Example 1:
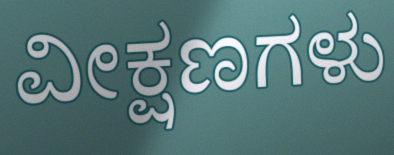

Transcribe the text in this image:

ವೀಕ್ಷಣಗಳು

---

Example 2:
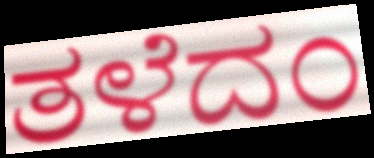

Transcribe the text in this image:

ತಳೆದಂ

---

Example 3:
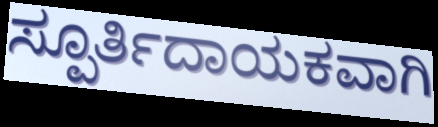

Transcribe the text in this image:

ಸ್ಪೂರ್ತಿದಾಯಕವಾಗಿ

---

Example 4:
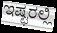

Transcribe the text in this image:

ಇಷ್ಟರಲ್ಲಿ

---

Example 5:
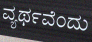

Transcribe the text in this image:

ವ್ಯರ್ಥವೆಂದು